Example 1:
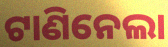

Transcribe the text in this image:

ଟାଣିନେଲା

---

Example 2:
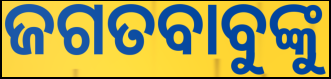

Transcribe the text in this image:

ଜଗତବାବୁଙ୍କୁ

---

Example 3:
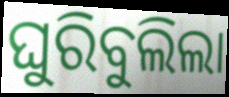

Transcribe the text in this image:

ଘୁରିବୁଲିଲା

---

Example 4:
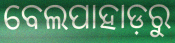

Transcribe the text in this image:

ବେଲପାହାଡ଼ରୁ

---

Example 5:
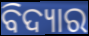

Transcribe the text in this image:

ବିଦ୍ୟାର